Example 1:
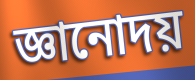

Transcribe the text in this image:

জ্ঞানোদয়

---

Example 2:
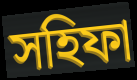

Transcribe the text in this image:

সহিফা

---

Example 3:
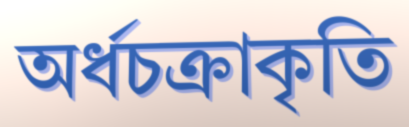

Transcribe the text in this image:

অর্ধচক্রাকৃতি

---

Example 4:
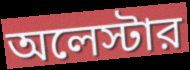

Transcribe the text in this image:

অলেস্টার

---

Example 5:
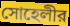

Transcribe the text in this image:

সোহেলীর